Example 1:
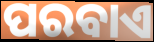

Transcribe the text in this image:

ପରବାଏ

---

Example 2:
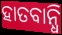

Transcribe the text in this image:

ହାତବାନ୍ଧି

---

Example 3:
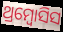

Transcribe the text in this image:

ଥ୍ରମ୍ବୋସିସ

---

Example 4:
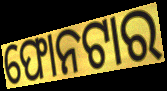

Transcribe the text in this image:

ଫୋନଟାର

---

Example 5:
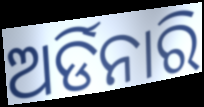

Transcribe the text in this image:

ଅର୍ଡିନାରି